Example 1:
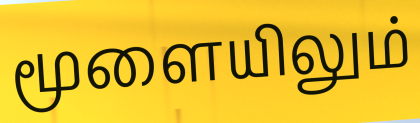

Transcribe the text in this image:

மூளையிலும்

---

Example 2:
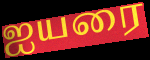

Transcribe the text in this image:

ஐயரை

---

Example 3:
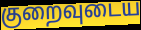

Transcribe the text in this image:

குறைவுடைய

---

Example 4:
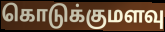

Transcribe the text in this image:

கொடுக்குமளவு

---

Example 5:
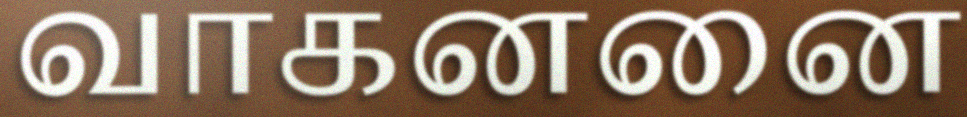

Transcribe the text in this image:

வாகனனை